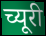
च्यूरी